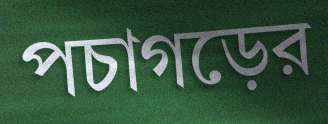
পচাগড়ের